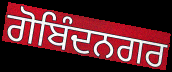
ਗੋਬਿੰਦਨਗਰ